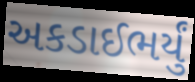
અકડાઈભર્યું